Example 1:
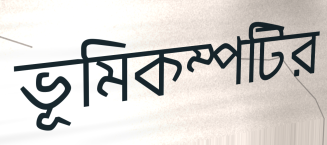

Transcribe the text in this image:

ভূমিকম্পটির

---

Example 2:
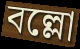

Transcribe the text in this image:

বল্লো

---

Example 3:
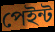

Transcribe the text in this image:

পেইন্ট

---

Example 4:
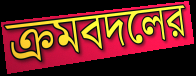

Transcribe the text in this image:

ক্রমবদলের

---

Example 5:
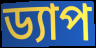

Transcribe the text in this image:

ড্যাপ